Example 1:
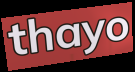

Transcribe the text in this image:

thayo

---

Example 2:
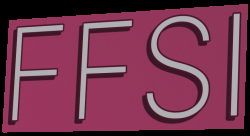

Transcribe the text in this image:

FFSI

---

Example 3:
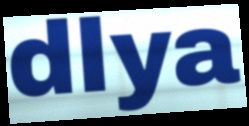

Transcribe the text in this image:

dlya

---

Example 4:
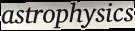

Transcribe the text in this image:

astrophysics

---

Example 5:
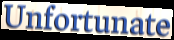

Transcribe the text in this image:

Unfortunate